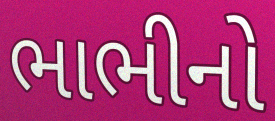
ભાભીનો